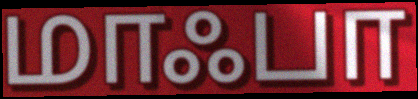
மாஃபா